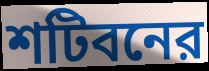
শটিবনের